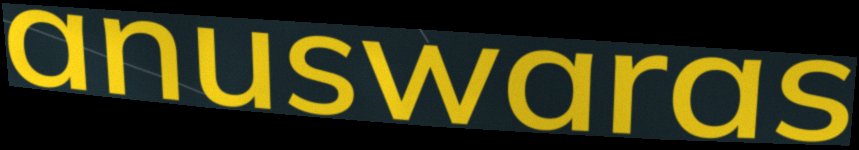
anuswaras